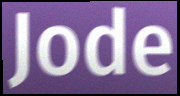
Jode